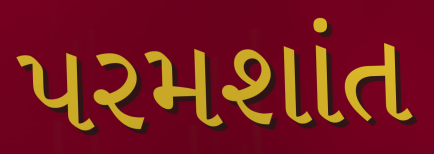
પરમશાંત